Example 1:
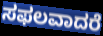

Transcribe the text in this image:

ಸಫಲವಾದರೆ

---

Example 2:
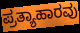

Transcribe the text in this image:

ಪ್ರತ್ಯಾಹಾರವು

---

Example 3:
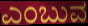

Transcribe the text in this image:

ಎಂಬುವ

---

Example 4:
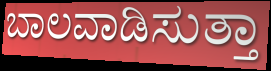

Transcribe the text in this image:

ಬಾಲವಾಡಿಸುತ್ತಾ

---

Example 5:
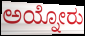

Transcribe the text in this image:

ಅಯ್ನೋರು